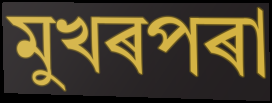
মুখৰপৰা